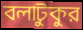
বলাটুকুর